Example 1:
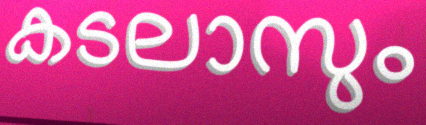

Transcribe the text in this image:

കടലാസും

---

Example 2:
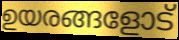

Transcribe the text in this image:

ഉയരങ്ങളോട്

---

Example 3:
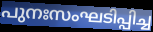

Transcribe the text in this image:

പുനഃസംഘടിപ്പിച്ച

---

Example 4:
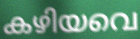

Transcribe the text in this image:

കഴിയവെ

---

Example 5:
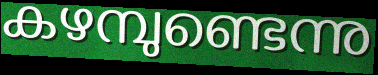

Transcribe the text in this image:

കഴമ്പുണ്ടെന്നു